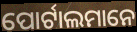
ପୋର୍ଟାଲମାନେ